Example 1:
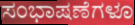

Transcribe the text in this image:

ಸಂಭಾಷಣೆಗಳೂ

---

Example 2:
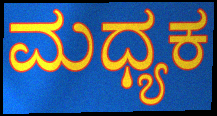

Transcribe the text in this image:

ಮಧ್ಯಕ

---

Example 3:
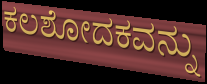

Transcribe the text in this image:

ಕಲಶೋದಕವನ್ನು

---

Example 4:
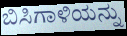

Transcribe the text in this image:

ಬಿಸಿಗಾಳಿಯನ್ನು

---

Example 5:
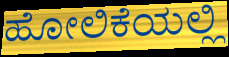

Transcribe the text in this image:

ಹೋಲಿಕೆಯಲ್ಲಿ